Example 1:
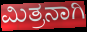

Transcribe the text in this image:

ಮಿತ್ರನಾಗಿ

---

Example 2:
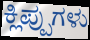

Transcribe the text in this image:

ಕ್ಲಿಪ್ಪುಗಳು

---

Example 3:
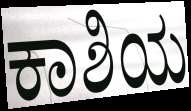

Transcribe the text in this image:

ಕಾಶಿಯ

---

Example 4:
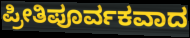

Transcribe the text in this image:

ಪ್ರೀತಿಪೂರ್ವಕವಾದ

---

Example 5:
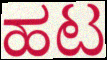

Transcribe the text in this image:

ಹಟ